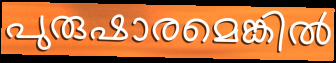
പുരുഷാരമെങ്കിൽ